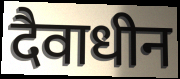
दैवाधीन